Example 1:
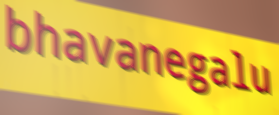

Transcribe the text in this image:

bhavanegalu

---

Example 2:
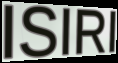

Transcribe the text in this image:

ISIRI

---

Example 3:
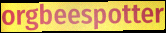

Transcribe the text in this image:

orgbeespotter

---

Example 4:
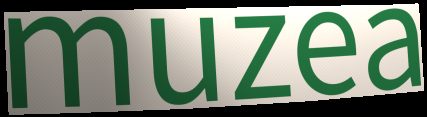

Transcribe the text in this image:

muzea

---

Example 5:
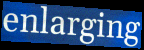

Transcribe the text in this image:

enlarging